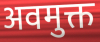
अवमुक्त